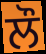
ਲੌ